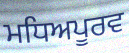
ਮਧਿਅਪੂਰਵ